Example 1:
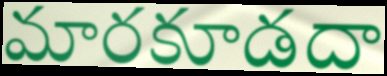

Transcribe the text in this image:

మారకూడదా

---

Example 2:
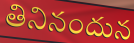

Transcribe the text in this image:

తినినందున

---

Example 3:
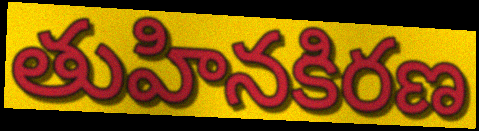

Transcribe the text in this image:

తుహినకిరణ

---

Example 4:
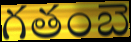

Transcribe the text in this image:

గతంబె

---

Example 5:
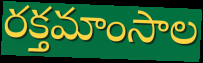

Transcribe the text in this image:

రక్తమాంసాల